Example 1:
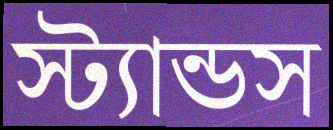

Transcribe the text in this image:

স্ট্যান্ডস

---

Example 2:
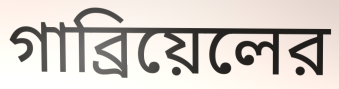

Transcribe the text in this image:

গাব্রিয়েলের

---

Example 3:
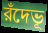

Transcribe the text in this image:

রঁদেভূ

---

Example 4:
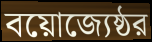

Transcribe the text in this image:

বয়োজ্যেষ্ঠর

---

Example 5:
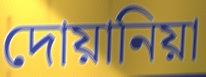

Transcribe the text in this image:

দোয়ানিয়া